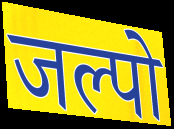
जल्पो